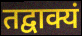
तद्वाक्यं